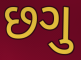
છગુ